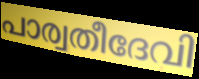
പാര്വതീദേവി